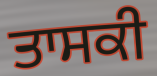
ਤਾਸਕੀ